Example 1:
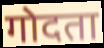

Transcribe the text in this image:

गोदता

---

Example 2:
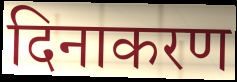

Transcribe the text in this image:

दिनाकरण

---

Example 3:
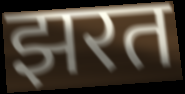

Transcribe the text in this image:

झरत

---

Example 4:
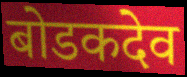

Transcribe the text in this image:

बोडकदेव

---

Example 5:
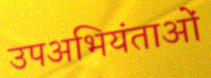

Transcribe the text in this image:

उपअभियंताओं